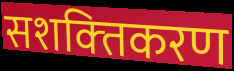
सशक्‍तिकरण